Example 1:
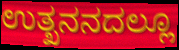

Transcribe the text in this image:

ಉತ್ಖನನದಲ್ಲೂ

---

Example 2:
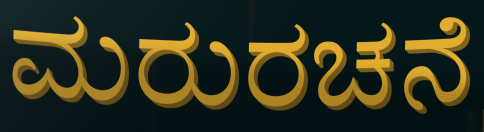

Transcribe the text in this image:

ಮರುರಚನೆ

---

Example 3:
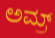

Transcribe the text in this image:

ಅಮ್ರ್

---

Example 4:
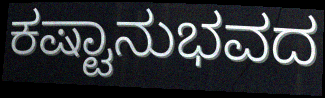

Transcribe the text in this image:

ಕಷ್ಟಾನುಭವದ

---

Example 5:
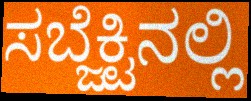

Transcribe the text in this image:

ಸಬ್ಜೆಕ್ಟಿನಲ್ಲಿ